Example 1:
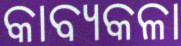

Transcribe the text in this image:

କାବ୍ୟକଳା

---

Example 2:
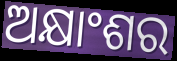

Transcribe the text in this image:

ଅକ୍ଷାଂଶର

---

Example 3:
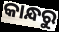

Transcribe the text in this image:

କାନ୍ଧରୁ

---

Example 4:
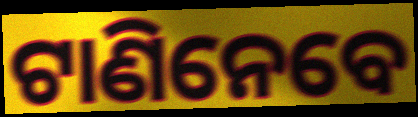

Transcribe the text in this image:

ଟାଣିନେବେ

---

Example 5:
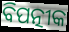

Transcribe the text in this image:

ବିପତ୍ନୀକ